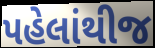
પહેલાંથીજ